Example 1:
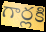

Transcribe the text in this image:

గార్లకి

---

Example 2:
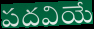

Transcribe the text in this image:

పదవియే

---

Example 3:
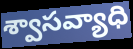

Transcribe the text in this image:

శ్వాసవ్యాధి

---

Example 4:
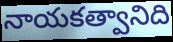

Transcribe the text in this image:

నాయకత్వానిది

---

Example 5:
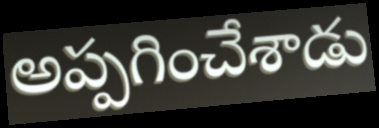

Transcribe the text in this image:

అప్పగించేశాడు